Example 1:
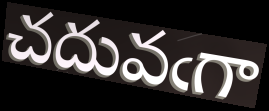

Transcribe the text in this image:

చదువఁగా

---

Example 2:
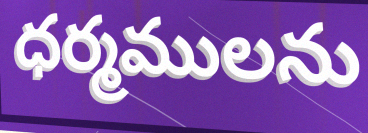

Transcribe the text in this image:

ధర్మములను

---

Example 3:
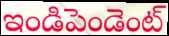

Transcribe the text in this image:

ఇండిపెండెంట్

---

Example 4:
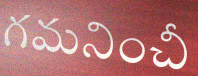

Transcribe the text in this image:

గమనించీ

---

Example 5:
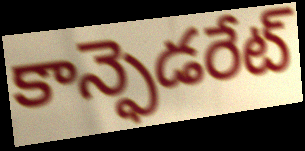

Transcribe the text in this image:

కాన్ఫెడరేట్